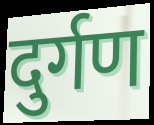
दुर्गण